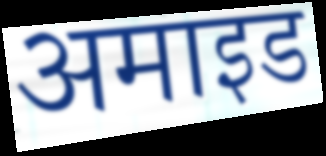
अमाइड